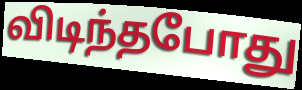
விடிந்தபோது